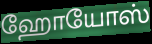
ஹோயோஸ்